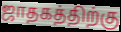
ஜாதகத்திற்கு